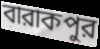
বারাকপুর